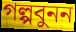
গল্পবুনন